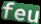
feu